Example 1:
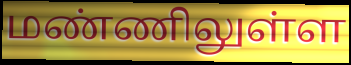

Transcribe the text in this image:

மண்ணிலுள்ள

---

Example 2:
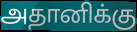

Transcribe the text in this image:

அதானிக்கு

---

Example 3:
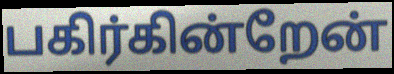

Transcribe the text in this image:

பகிர்கின்றேன்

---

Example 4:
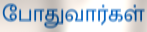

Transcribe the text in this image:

போதுவார்கள்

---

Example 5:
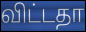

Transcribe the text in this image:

விட்டதா